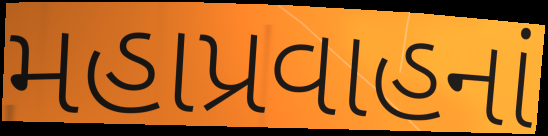
મહાપ્રવાહનાં